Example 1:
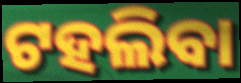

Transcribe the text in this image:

ଟହଲିବା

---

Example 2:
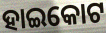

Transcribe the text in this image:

ହାଇକୋଟ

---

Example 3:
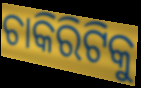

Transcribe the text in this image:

ଚାକିରିଟିକୁ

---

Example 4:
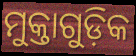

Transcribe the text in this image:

ମୁକ୍ତାଗୁଡ଼ିକ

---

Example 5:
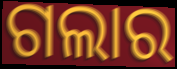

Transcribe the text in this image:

ଗଲାର